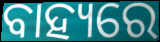
ବାହ୍ୟରେ